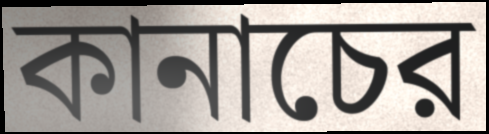
কানাচের